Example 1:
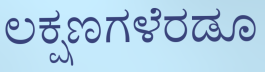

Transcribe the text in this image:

ಲಕ್ಷಣಗಳೆರಡೂ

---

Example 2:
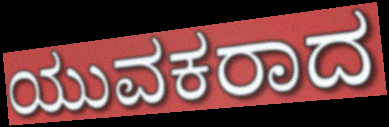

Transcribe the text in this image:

ಯುವಕರಾದ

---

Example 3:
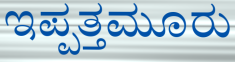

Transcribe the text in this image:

ಇಪ್ಪತ್ತಮೂರು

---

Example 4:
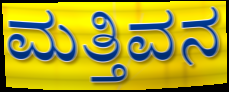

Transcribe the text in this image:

ಮತ್ತಿವನ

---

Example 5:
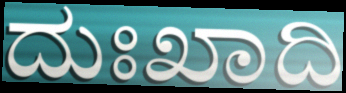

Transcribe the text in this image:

ದುಃಖಾದಿ